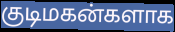
குடிமகன்களாக